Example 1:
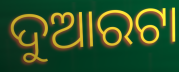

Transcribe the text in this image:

ଦୁଆରଟା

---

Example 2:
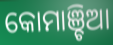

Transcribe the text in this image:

କୋମାଞ୍ଚିଆ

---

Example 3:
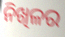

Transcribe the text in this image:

ନିଖିଳର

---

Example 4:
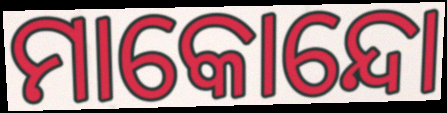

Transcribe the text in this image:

ମାକୋନ୍ଦୋ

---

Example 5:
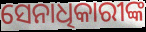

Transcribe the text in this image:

ସେନାଧିକାରୀଙ୍କ